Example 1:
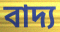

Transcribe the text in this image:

বাদ্য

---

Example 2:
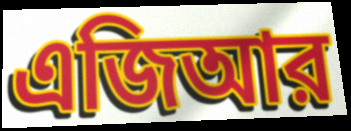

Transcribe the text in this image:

এজিআর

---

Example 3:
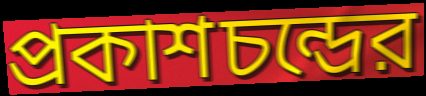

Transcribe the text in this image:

প্রকাশচন্দ্রের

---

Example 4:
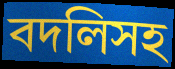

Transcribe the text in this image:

বদলিসহ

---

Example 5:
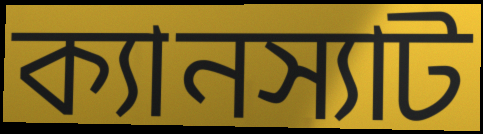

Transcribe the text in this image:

ক্যানস্যাট